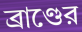
ব্রাণ্ডের